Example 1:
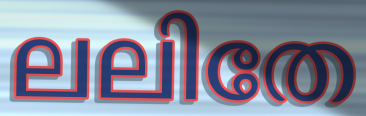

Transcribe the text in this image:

ലലിതേ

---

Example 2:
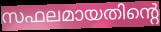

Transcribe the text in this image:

സഫലമായതിന്റെ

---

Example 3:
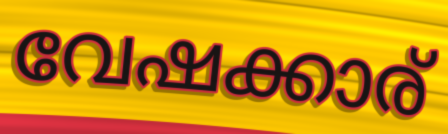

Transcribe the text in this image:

വേഷക്കാര്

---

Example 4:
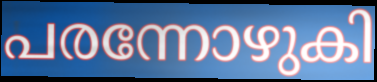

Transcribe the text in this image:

പരന്നോഴുകി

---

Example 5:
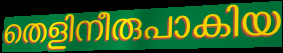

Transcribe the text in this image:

തെളിനീരുപാകിയ